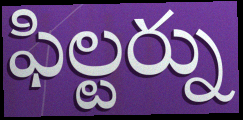
ఫిల్టర్ను